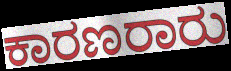
ಕಾರಣರಾರು